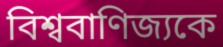
বিশ্ববাণিজ্যকে